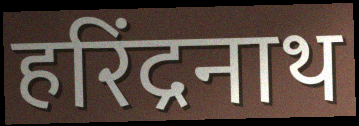
हरिंद्रनाथ